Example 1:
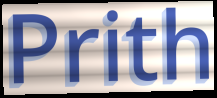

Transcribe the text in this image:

Prith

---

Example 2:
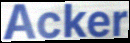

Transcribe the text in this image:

Acker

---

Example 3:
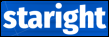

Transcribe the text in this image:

staright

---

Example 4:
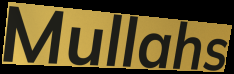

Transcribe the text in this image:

Mullahs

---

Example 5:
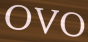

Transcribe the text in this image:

OVO